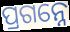
ପ୍ରଗନ୍ନେ